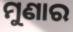
ମୁଣାର